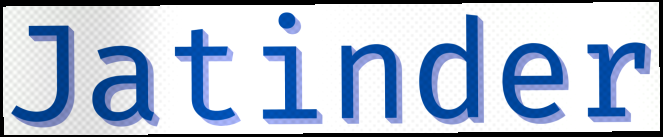
Jatinder